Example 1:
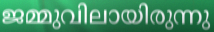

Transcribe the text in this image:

ജമ്മുവിലായിരുന്നു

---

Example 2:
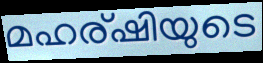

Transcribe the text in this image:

മഹര്ഷിയുടെ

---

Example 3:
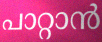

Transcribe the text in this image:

പാറ്റാൻ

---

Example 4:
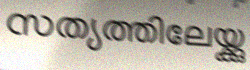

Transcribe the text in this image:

സത്യത്തിലേയ്ക്കു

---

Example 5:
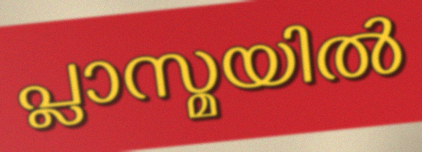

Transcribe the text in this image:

പ്ലാസ്മയിൽ